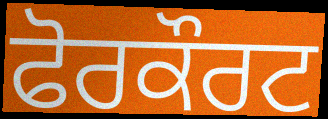
ਫੋਰਕੌਰਟ